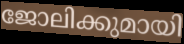
ജോലിക്കുമായി